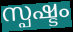
സ്പഷ്ടം